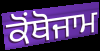
ਕੋਂਥੋਜਾਮ